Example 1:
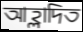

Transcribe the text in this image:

আহ্লাদিত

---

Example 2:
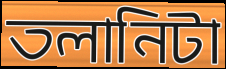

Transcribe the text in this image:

তলানিটা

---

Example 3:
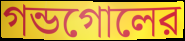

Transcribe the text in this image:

গন্ডগোলের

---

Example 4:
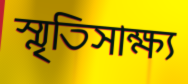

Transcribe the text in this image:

স্মৃতিসাক্ষ্য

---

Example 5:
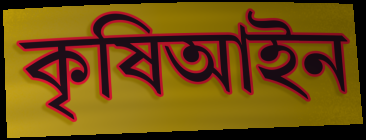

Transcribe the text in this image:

কৃষিআইন